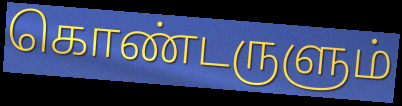
கொண்டருளும்